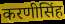
करणीसिंह